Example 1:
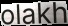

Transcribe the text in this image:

olakh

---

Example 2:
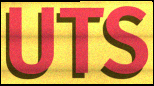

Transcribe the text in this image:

UTS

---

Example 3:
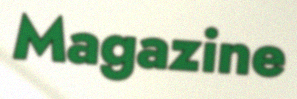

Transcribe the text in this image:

Magazine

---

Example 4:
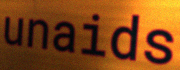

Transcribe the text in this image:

unaids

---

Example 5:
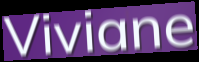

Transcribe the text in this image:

Viviane